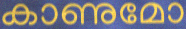
കാണുമോ